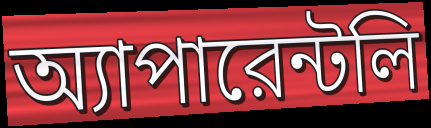
অ্যাপারেন্টলি